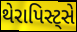
થેરાપિસ્ટ્સે